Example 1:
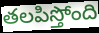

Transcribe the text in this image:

తలపిస్తోంది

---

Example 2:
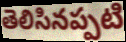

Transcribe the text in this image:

తెలిసినప్పటి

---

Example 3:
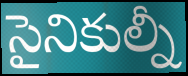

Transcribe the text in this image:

సైనికుల్నీ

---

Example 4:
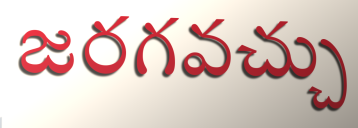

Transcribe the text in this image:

జరగవచ్చు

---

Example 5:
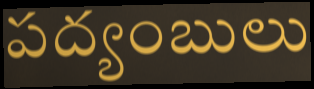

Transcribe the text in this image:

పద్యంబులు